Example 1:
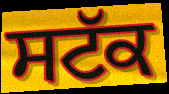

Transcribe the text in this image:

ਸਟੱਕ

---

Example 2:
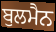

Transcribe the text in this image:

ਬੁਲਮੈਨ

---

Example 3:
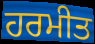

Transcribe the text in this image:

ਹਰਮੀਤ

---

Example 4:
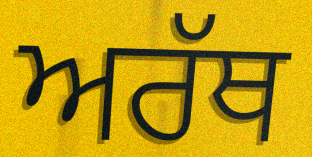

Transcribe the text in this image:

ਅਰੱਥ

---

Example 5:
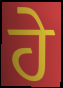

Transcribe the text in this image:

ਹੇ